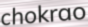
chokrao